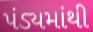
પંડ્યમાંથી